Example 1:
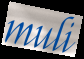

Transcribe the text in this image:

muli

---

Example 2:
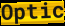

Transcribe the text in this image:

Optic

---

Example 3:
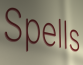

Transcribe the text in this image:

Spells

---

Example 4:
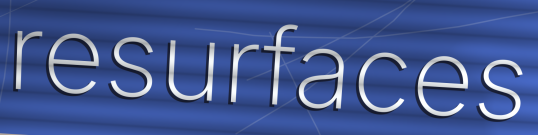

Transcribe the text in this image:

resurfaces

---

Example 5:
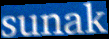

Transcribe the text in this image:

sunak